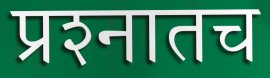
प्रश्नातच